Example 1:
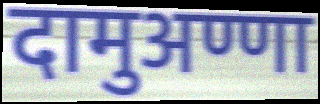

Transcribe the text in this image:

दामुअण्णा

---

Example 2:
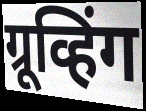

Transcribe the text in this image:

ग्रूव्हिंग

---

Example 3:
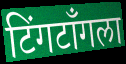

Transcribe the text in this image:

टिंगटॉंगला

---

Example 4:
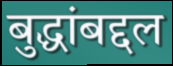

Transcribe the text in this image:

बुद्धांबद्दल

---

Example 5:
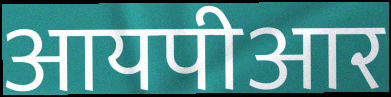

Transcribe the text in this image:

आयपीआर